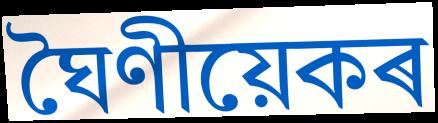
ঘৈণীয়েকৰ